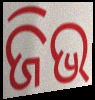
ଜିଭ